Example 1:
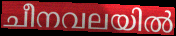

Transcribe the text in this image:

ചീനവലയിൽ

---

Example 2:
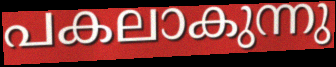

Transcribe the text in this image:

പകലാകുന്നു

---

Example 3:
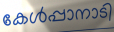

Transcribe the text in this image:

കേൾപ്പാനാടി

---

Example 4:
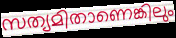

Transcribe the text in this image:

സത്യമിതാണെങ്കിലും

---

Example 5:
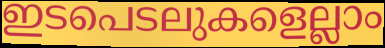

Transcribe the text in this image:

ഇടപെടലുകളെല്ലാം